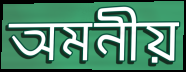
অমনীয়